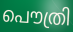
പൌത്രി